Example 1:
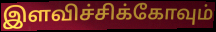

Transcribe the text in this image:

இளவிச்சிக்கோவும்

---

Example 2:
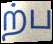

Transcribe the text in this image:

ற்ப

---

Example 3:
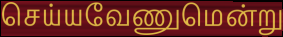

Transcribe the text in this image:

செய்யவேணுமென்று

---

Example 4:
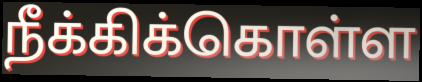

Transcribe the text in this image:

நீக்கிக்கொள்ள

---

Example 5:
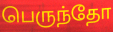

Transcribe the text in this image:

பெருந்தோ